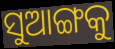
ସୁଆଙ୍ଗକୁ